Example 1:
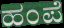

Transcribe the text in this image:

ಹಂಪೆ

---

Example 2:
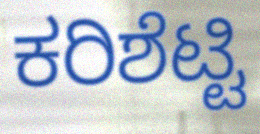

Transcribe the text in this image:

ಕರಿಶೆಟ್ಟಿ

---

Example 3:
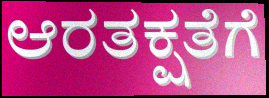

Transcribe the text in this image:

ಆರತಕ್ಷತೆಗೆ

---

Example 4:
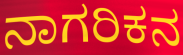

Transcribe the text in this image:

ನಾಗರಿಕನ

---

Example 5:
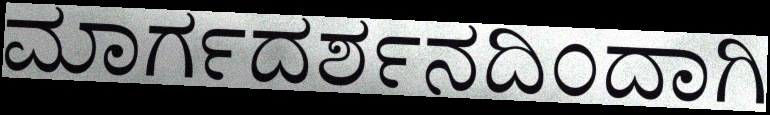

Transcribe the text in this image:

ಮಾರ್ಗದರ್ಶನದಿಂದಾಗಿ